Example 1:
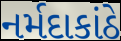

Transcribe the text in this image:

નર્મદાકાંઠે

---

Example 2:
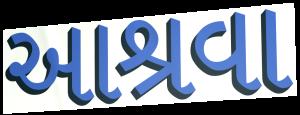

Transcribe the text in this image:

આશ્રવા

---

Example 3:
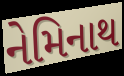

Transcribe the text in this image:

નેમિનાથ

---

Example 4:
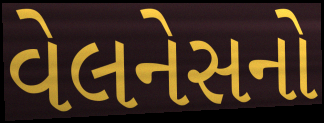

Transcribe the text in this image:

વેલનેસનો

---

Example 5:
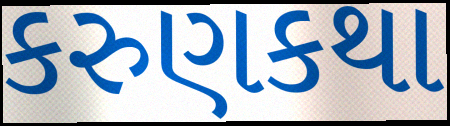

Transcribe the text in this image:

કરુણકથા